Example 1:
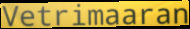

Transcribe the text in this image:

Vetrimaaran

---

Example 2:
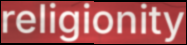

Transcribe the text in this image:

religionity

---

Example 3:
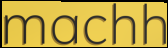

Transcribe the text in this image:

machh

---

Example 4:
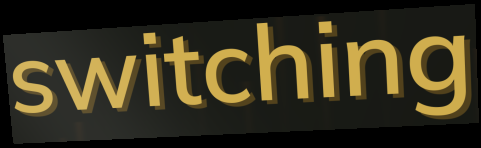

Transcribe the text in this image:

switching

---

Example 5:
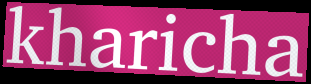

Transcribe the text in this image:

kharicha